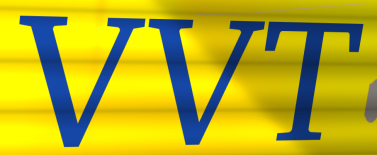
VVT